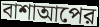
বাশাআপের